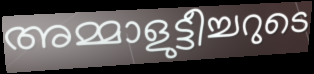
അമ്മാളുട്ടീച്ചറുടെ